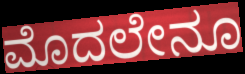
ಮೊದಲೇನೂ